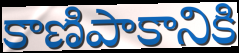
కాణిపాకానికి